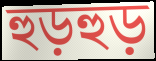
হুড়হুড়